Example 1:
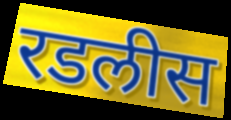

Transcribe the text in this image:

रडलीस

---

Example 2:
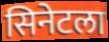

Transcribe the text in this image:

सिनेटला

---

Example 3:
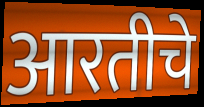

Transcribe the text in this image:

आरतीचे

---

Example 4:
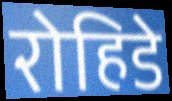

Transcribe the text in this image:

रोहिडे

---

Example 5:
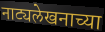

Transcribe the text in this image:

नाट्यलेखनाच्या